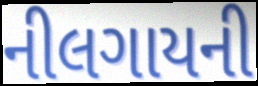
નીલગાયની